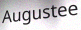
Augustee